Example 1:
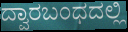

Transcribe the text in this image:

ದ್ವಾರಬಂಧದಲ್ಲಿ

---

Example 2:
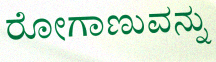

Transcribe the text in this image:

ರೋಗಾಣುವನ್ನು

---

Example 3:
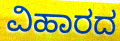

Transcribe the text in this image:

ವಿಹಾರದ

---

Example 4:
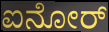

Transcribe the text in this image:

ಐನೋರ್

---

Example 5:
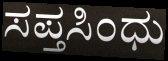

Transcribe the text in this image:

ಸಪ್ತಸಿಂಧು